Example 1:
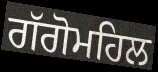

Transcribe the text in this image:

ਗੱਗੋਮਹਿਲ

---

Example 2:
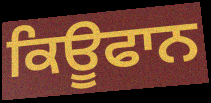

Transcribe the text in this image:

ਕਿਊਫਾਨ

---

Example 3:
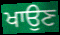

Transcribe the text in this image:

ਖਾਉਣ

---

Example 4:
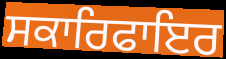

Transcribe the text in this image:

ਸਕਾਰਿਫਾਇਰ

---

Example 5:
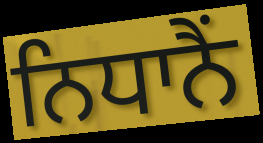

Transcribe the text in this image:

ਨਿਧਾਨੈਂ